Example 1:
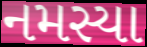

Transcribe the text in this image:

નમસ્યા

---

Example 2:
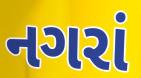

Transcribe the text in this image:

નગરાં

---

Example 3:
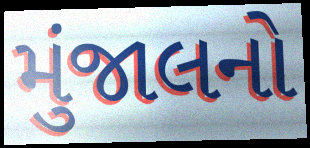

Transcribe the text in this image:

મુંજાલનો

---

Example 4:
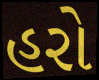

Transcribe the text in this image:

હરો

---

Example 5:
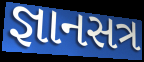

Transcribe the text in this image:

જ્ઞાનસત્ર